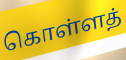
கொள்ளத்